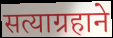
सत्याग्रहाने